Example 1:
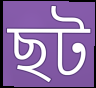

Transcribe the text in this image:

ছট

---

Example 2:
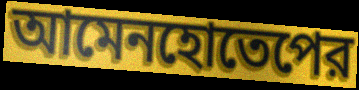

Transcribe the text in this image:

আমেনহোতেপের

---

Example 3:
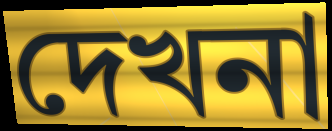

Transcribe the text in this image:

দেখনা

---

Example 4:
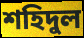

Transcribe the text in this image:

শহিদুল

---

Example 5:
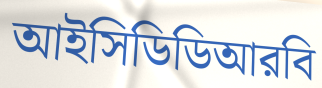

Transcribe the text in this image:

আইসিডিডিআরবি